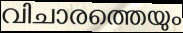
വിചാരത്തെയും